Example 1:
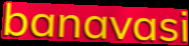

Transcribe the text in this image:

banavasi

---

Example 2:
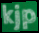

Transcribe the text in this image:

kjp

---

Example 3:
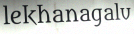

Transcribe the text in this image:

lekhanagalu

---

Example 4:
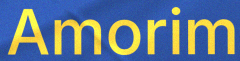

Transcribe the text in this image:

Amorim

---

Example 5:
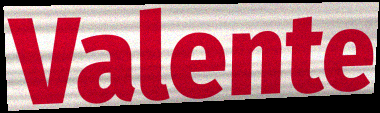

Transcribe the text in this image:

Valente